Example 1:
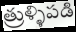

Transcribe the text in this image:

త్రుళ్ళిపడి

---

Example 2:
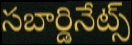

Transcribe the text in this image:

సబార్డినేట్స్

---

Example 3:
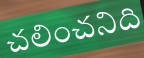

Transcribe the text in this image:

చలించనిది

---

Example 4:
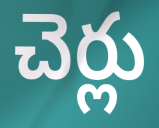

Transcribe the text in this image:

చెర్లు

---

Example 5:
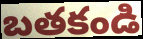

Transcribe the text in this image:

బతకండి